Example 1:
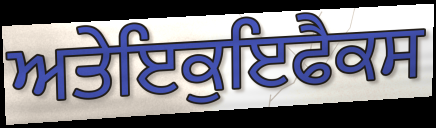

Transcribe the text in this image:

ਅਤੇਇਕੁਇਫੈਕਸ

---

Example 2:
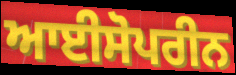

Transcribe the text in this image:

ਆਈਸੋਪਰੀਨ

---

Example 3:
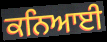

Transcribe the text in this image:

ਕਨਿਆਈ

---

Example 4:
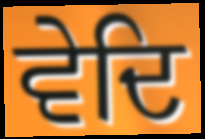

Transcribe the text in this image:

ਵੇਦਿ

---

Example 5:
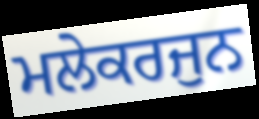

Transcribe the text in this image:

ਮਲੇਕਰਜੁਨ